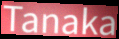
Tanaka